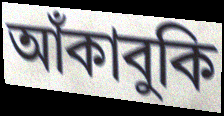
আঁকাবুকি